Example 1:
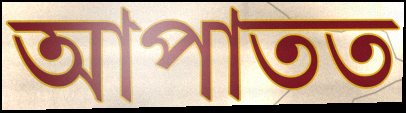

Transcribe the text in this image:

আপাতত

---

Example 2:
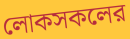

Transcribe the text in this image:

লোকসকলের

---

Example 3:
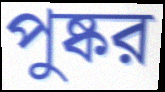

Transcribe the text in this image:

পুষ্কর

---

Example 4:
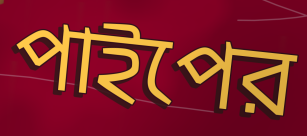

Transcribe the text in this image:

পাইপের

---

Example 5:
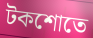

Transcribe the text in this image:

টকশোতে